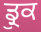
ਡ੍ਰੁਕ